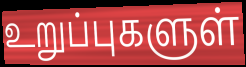
உறுப்புகளுள்